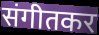
संगीतकर